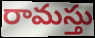
రామస్తు